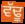
ਵੱਢੂ